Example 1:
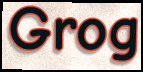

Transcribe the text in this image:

Grog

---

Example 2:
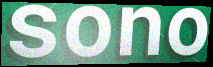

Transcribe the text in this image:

sono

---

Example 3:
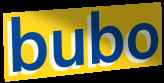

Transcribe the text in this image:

bubo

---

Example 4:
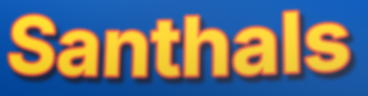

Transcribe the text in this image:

Santhals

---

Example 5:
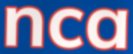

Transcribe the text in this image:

nca